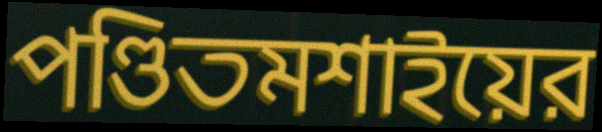
পণ্ডিতমশাইয়ের